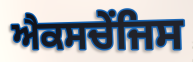
ਐਕਸਚੇਂਜਿਸ